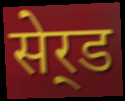
सेर्ड